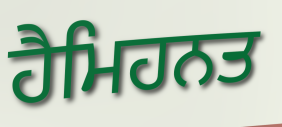
ਹੈਮਿਹਨਤ